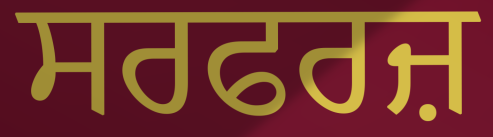
ਸਰਫਰਜ਼